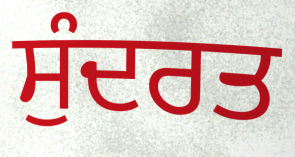
ਸੁੰਦਰਤ